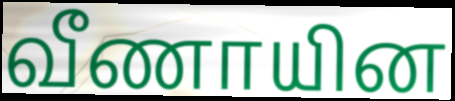
வீணாயின